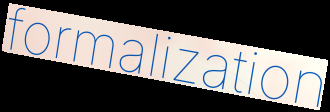
formalization